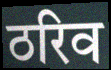
ठरिव